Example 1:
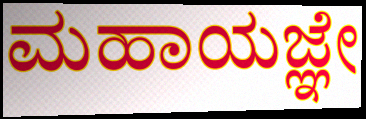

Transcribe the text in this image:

ಮಹಾಯಜ್ಞೇ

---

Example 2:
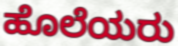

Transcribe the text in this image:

ಹೊಲೆಯರು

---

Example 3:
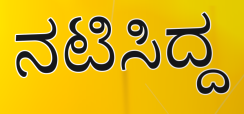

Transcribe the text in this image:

ನಟಿಸಿದ್ದ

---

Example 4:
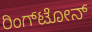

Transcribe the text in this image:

ರಿಂಗ್‌ಟೋನ್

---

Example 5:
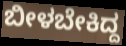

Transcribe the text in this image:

ಬೀಳಬೇಕಿದ್ದ